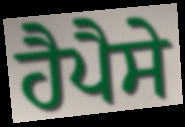
ਹੈਪੈਸੇ